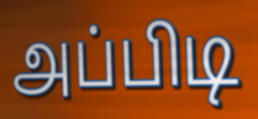
அப்பிடி